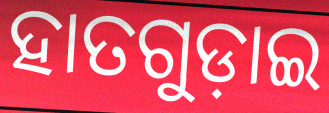
ହାତଗୁଡ଼ାଇ